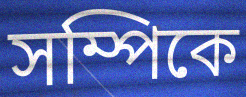
সম্পিকে